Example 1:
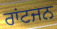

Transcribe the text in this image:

ਰਾਂਟਜਨ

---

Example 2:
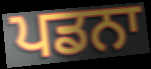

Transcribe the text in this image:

ਪਡਨਾ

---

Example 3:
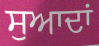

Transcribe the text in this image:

ਸੁਆਦਾਂ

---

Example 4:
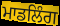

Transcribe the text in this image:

ਮਾਡਲਿੰਗ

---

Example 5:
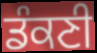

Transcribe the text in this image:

ਡੰਕਣੀ